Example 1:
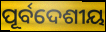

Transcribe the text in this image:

ପୂର୍ବଦେଶୀୟ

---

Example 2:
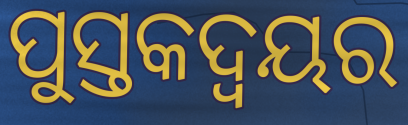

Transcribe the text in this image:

ପୁସ୍ତକଦ୍ୱୟର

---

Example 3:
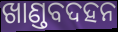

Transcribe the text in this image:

ଖାଣ୍ଡବଦହନ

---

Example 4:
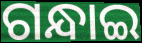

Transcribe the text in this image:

ଗନ୍ଧାଇ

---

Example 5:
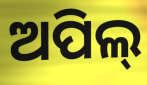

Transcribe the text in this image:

ଅପିଲ୍